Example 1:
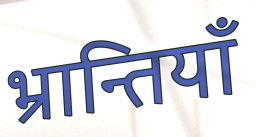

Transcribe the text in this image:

भ्रान्तियाँ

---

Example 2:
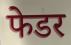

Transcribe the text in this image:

फेडर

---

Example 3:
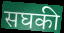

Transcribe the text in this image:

सघकी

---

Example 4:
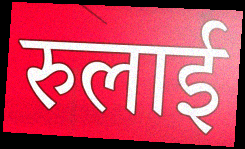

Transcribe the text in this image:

रुलाई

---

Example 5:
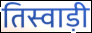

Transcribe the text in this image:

तिस्वाड़ी